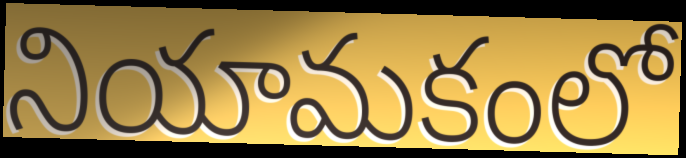
నియామకంలో